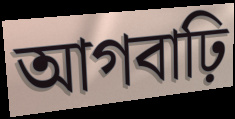
আগবাঢ়ি